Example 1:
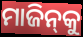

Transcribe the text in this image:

ମାଜିନ୍‌କୁ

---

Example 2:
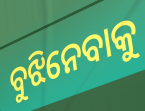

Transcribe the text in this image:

ବୁଝିନେବାକୁ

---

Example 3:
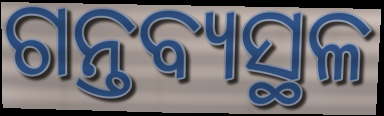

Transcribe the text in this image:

ଗନ୍ତବ୍ୟସ୍ଥଳ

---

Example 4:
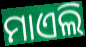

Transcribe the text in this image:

ମାଏଲି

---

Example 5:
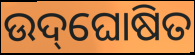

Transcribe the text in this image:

ଉଦ୍‌ଘୋଷିତ